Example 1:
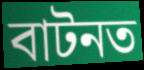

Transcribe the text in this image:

বাটনত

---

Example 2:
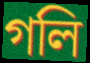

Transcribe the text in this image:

গলি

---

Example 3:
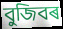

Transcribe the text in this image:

বুজিবৰ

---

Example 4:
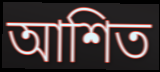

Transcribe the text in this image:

আশিত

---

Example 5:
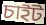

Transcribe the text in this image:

চাইট